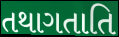
તથાગતાતિ